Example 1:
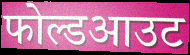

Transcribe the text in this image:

फोल्डआउट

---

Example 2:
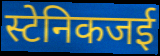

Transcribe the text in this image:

स्टेनिकजई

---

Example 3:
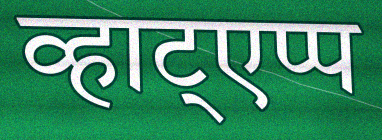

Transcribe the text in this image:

व्हाट्एप्प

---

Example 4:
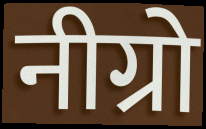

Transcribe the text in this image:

नीग्रो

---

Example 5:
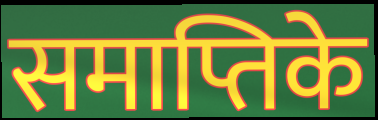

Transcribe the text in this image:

समाप्तिके